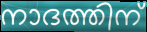
നാദത്തിന്